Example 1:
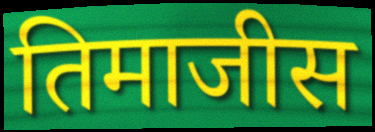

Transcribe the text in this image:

तिमाजीस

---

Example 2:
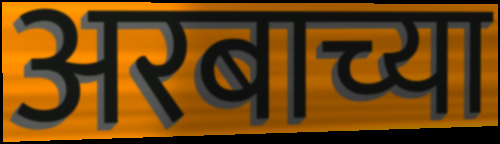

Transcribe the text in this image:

अरबाच्या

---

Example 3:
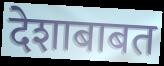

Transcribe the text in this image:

देशाबाबत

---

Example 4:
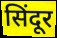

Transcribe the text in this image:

सिंदूर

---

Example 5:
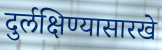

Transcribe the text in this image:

दुर्लक्षिण्यासारखे